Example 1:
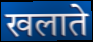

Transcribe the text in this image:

खलाते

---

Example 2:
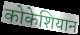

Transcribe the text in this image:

कोकेशियान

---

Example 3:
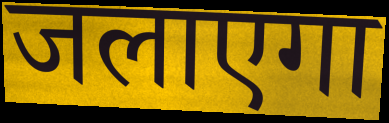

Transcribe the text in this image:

जलाएगा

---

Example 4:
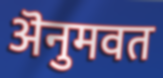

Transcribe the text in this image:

ऄनुमवत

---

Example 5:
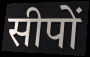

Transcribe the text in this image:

सीपों